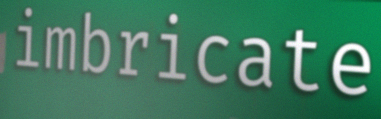
imbricate